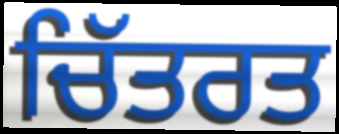
ਚਿੱਤਰਤ